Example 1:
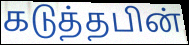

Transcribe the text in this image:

கடுத்தபின்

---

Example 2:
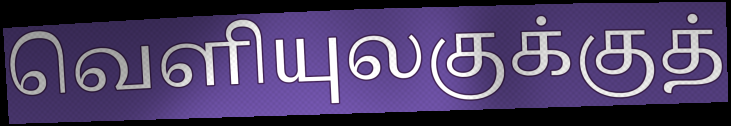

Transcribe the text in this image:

வெளியுலகுக்குத்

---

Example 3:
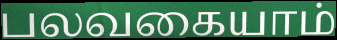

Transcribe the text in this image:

பலவகையாம்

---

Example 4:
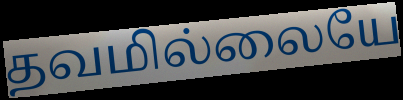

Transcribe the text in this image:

தவமில்லையே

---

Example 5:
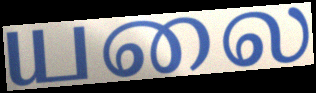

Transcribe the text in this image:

யலை